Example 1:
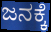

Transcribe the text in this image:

ಜನಕ್ಕೆ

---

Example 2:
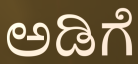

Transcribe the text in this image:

ಅಡಿಗೆ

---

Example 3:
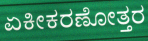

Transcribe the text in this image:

ಏಕೀಕರಣೋತ್ತರ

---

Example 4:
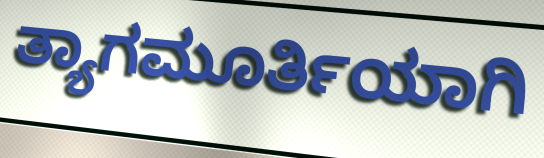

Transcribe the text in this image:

ತ್ಯಾಗಮೂರ್ತಿಯಾಗಿ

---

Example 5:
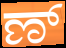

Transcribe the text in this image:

ಣ್